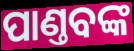
ପାଣ୍ତବଙ୍କ